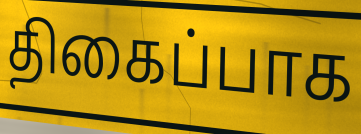
திகைப்பாக